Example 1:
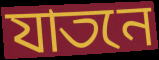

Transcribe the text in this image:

যাতনে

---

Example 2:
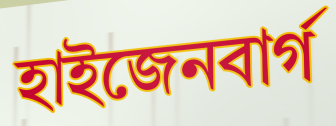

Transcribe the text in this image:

হাইজেনবার্গ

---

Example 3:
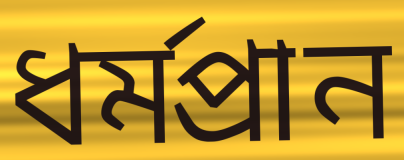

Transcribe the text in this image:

ধর্মপ্রান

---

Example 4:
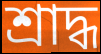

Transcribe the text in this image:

শ্রাদ্ধ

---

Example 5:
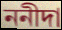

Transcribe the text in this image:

ননীদা